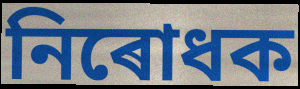
নিৰোধক